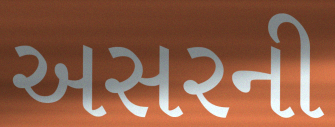
અસરની